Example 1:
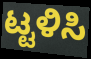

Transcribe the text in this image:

ಟ್ಟಳಿಸಿ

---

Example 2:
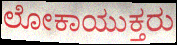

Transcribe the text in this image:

ಲೋಕಾಯುಕ್ತರು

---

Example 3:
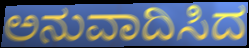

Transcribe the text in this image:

ಅನುವಾದಿಸಿದ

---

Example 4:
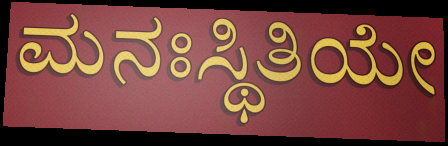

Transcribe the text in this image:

ಮನಃಸ್ಥಿತಿಯೇ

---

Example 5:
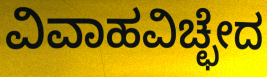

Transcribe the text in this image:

ವಿವಾಹವಿಚ್ಛೇದ